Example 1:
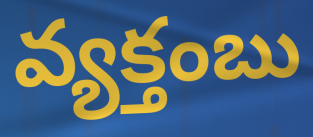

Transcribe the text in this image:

వ్యక్తంబు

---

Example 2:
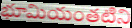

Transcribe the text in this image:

భూమియంతటిని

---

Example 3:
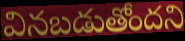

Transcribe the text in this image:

వినబడుతోందని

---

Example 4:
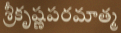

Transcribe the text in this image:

శ్రీకృష్ణపరమాత్మ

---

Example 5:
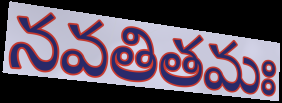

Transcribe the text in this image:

నవతితమః